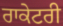
ਰਾਕੇਟਰੀ